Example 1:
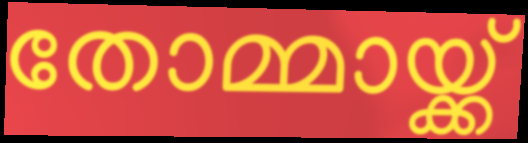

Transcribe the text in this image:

തോമ്മായ്ക്ക്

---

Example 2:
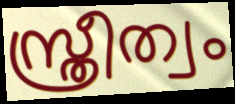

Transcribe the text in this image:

സ്ത്രീത്വം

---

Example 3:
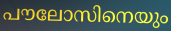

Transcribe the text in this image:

പൗലോസിനെയും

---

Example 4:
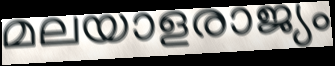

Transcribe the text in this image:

മലയാളരാജ്യം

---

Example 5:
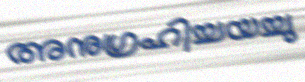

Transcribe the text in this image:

അനുഗ്രഹിച്ചയച്ചു